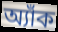
অ্যাঁক